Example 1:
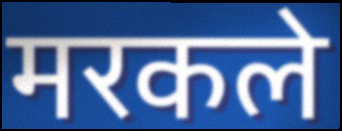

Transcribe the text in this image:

मरकले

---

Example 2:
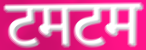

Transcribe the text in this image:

टमटम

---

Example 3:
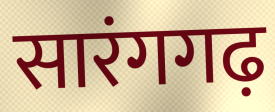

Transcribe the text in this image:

सारंगगढ़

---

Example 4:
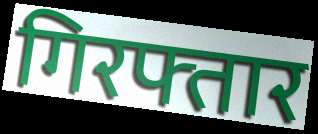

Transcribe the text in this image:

गिरफ्‍तार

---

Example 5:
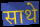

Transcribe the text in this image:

साथे